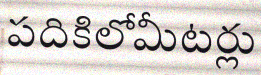
పదికిలోమీటర్లు